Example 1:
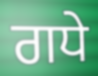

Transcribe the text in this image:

ਗਧੇ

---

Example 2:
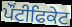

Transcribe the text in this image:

ਪੌਂਟੀਫਿਕੇਟ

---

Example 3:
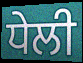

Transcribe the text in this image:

ਧੇਲੀ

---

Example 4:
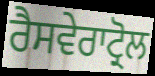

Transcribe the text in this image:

ਰੈਸਵੇਰਾਟ੍ਰੋਲ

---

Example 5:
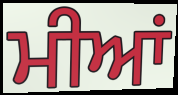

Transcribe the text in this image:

ਮੀਆਂ